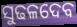
ସୁଢଳଦେବ